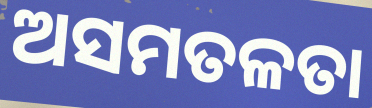
ଅସମତଳତା